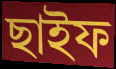
ছাইফ